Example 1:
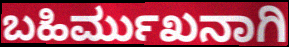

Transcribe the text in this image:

ಬಹಿರ್ಮುಖನಾಗಿ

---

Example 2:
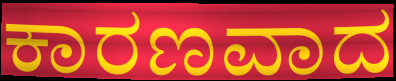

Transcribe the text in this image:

ಕಾರಣವಾದ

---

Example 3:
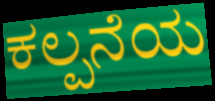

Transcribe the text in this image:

ಕಲ್ಪನೆಯ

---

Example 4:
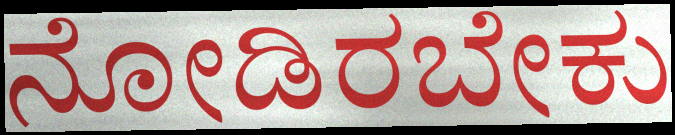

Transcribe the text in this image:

ನೋಡಿರಬೇಕು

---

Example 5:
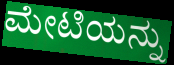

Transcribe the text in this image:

ಮೇಟಿಯನ್ನು